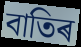
বাতিৰ